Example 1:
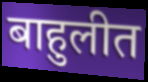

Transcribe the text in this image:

बाहुलीत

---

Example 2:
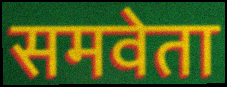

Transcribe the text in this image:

समवेता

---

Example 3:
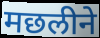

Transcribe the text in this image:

मछलीने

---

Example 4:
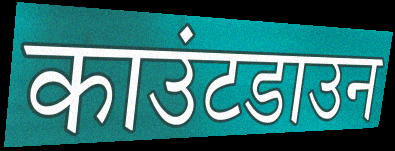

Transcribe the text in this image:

काउंटडाउन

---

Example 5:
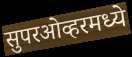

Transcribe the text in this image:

सुपरओव्हरमध्ये